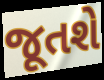
જૂતશે